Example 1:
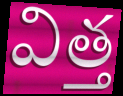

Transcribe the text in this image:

విత్త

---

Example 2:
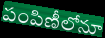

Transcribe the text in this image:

పంపిణీలోనూ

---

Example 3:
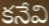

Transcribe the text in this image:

కనేవి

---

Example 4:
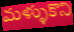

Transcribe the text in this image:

మళ్ళుకొని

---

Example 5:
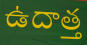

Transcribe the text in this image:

ఉదాత్త